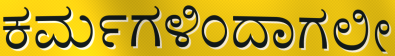
ಕರ್ಮಗಳಿಂದಾಗಲೀ